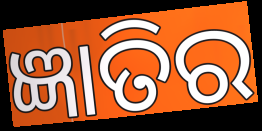
ଜ୍ଞାତିର